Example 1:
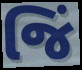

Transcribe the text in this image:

જિં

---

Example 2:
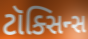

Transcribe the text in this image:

ટૉક્સિન્સ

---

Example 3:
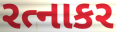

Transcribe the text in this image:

રત્નાકર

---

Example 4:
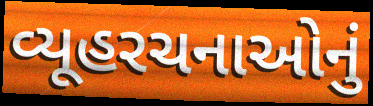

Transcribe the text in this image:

વ્યૂહરચનાઓનું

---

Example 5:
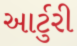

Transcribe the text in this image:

આર્ટુરી